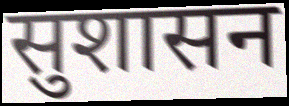
सुशासन